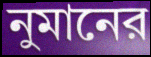
নুমানের